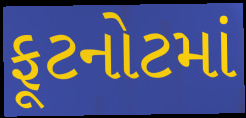
ફૂટનોટમાં